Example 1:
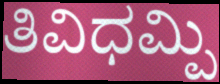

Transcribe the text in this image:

ತಿವಿಧಮ್ಪಿ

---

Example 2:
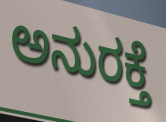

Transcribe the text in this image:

ಅನುರಕ್ತೆ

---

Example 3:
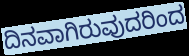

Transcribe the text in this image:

ದಿನವಾಗಿರುವುದರಿಂದ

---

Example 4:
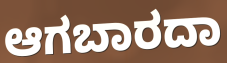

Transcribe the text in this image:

ಆಗಬಾರದಾ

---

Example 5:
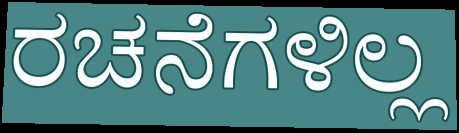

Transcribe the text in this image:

ರಚನೆಗಳಿಲ್ಲ